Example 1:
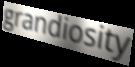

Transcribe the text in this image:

grandiosity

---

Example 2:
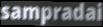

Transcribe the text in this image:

sampradai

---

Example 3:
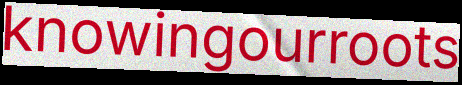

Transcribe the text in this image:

knowingourroots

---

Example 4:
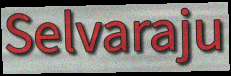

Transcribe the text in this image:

Selvaraju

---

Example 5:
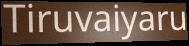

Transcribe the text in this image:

Tiruvaiyaru